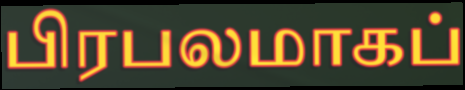
பிரபலமாகப்